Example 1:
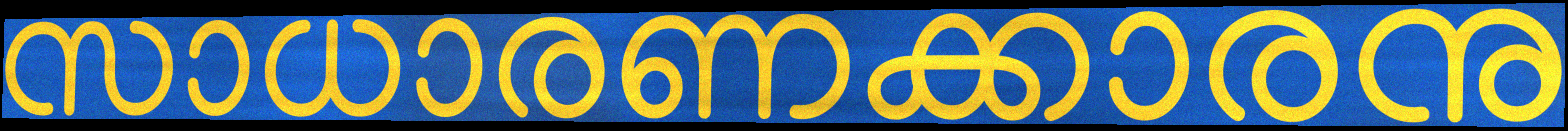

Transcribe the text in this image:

സാധാരണക്കാരനു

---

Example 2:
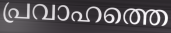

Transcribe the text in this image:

പ്രവാഹത്തെ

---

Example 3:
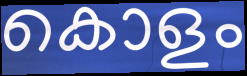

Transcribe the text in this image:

കൊളം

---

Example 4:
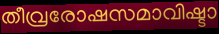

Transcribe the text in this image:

തീവ്രരോഷസമാവിഷ്ടാ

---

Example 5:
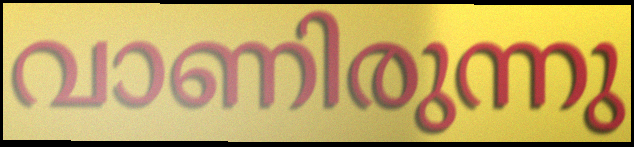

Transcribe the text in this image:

വാണിരുന്നു